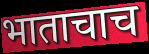
भाताचाच